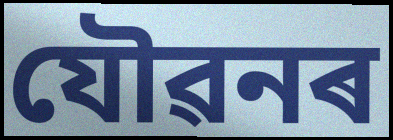
যৌৱনৰ